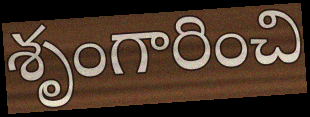
శృంగారించి